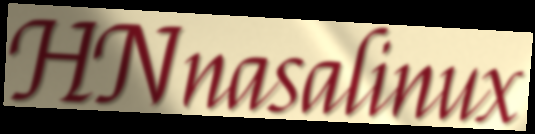
HNnasalinux